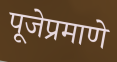
पूजेप्रमाणे